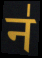
न॑